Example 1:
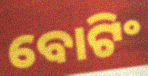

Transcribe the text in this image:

ବୋଟିଂ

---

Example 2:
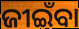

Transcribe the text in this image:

ଜୀଇଁବା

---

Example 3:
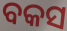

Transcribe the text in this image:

ବକସ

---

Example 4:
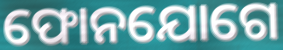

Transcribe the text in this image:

ଫୋନଯୋଗେ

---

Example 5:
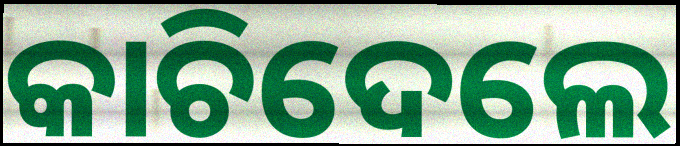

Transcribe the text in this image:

କାଚିଦେଲେ